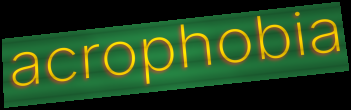
acrophobia